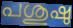
പശുഷു